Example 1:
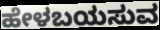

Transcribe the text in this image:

ಹೇಳಬಯಸುವ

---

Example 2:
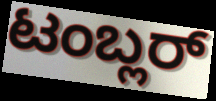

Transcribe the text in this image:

ಟಂಬ್ಲರ್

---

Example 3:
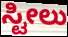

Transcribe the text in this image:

ಸ್ಟೀಲು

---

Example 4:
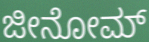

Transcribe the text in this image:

ಜೀನೋಮ್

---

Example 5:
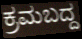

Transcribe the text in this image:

ಕ್ರಮಬದ್ದ